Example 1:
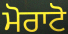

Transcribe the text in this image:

ਮੋਰਾਟੋ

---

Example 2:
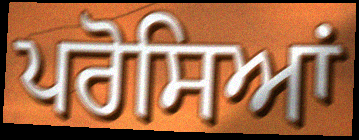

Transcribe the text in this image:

ਪਰੋਸਿਆਂ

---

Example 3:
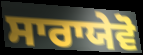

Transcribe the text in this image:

ਸਾਰਾਯੇਵੋ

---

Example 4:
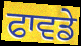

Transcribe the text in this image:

ਫਾਵਡੇ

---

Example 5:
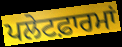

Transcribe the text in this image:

ਪਲੇਟਫ਼ਾਰਮਾਂ